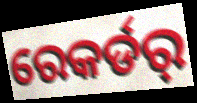
ରେକର୍ଡର୍